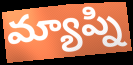
మ్యాప్ని